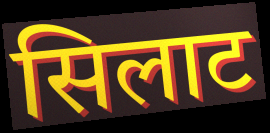
सिलाट